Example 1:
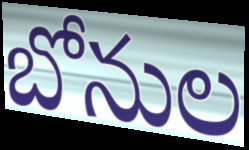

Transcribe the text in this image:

బోనుల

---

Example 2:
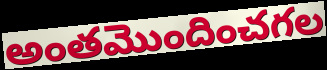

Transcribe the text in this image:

అంతమొందించగల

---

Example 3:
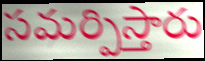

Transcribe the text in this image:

సమర్పిస్తారు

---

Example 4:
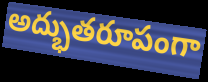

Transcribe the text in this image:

అద్భుతరూపంగా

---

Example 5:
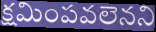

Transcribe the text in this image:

క్షమింపవలెనని